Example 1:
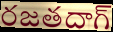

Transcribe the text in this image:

రజతదాగ్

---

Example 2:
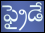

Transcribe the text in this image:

ఫ్రైడే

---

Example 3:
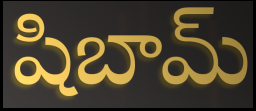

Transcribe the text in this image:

షిబామ్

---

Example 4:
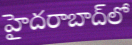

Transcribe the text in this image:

హైదరాబాద్‌లో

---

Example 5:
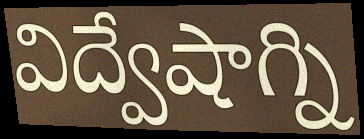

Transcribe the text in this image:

విద్వేషాగ్ని